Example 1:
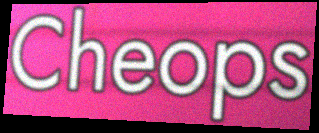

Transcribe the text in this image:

Cheops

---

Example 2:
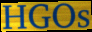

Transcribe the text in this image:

HGOs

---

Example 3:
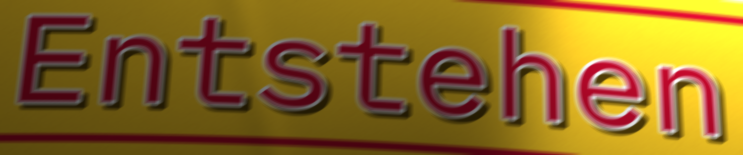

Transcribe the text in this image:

Entstehen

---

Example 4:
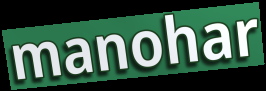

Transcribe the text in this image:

manohar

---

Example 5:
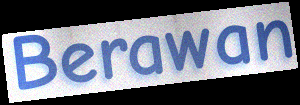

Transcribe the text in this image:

Berawan